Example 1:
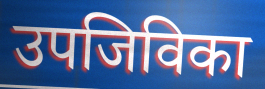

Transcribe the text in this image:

उपजिविका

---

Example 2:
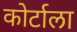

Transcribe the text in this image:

कोर्टाला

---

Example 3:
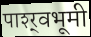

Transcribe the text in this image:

पाश्र्वभूमी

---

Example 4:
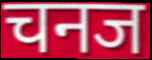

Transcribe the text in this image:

चनज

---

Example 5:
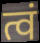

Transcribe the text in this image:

त्वं